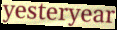
yesteryear